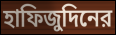
হাফিজুদিনের